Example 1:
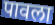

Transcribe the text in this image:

पावला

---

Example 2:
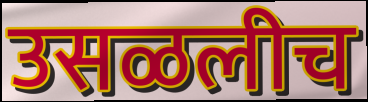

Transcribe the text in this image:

उसळलीच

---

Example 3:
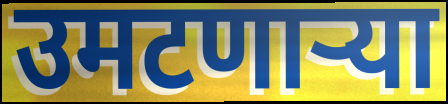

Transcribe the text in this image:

उमटणाऱ्या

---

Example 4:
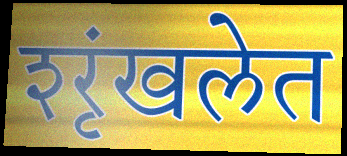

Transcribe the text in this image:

श्रृंखलेत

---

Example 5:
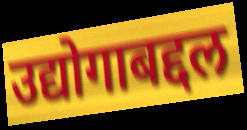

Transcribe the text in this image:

उद्योगाबद्दल